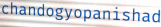
chandogyopanishad